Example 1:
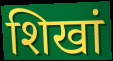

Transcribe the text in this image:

शिखां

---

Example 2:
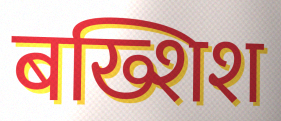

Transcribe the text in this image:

बख्शिश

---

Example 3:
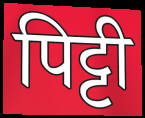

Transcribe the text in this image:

पिट्टी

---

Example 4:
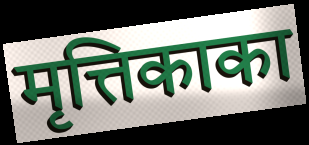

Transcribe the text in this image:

मृत्तिकाका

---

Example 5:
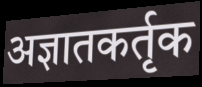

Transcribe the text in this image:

अज्ञातकर्तृक